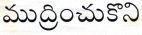
ముద్రించుకొని